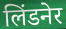
लिंडनेर